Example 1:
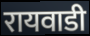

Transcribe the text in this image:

रायवाडी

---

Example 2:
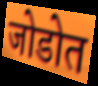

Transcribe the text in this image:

जोडोत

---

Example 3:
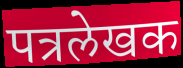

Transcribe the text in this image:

पत्रलेखक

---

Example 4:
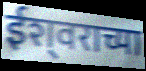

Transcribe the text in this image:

ईश्वराच्या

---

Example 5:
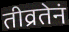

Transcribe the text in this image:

तीव्रतेनं